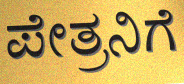
ಪೇತ್ರನಿಗೆ